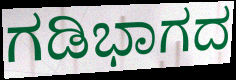
ಗಡಿಭಾಗದ